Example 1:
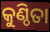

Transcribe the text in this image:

କୁଣ୍ଠିତା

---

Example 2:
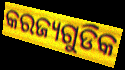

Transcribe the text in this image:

କରଜ୍ୟଗୁଡିକ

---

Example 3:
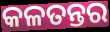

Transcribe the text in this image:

କଳତନ୍ତର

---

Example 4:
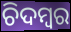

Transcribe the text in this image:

ଚିଦମ୍ବର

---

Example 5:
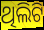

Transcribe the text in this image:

ଥିଲିଟି